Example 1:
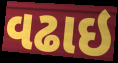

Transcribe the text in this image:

વઢાઇ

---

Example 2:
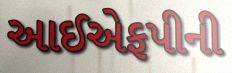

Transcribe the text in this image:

આઈએફપીની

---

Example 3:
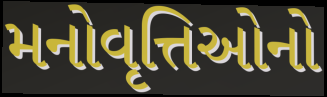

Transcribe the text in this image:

મનોવૃત્તિઓનો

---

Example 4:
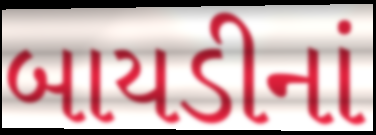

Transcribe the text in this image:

બાયડીનાં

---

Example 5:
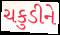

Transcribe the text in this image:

ચકુડીને